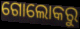
ଗୋଲୋକରୁ